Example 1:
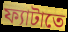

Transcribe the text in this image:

ফ্যাটাতে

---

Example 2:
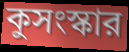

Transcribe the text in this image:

কুসংস্কার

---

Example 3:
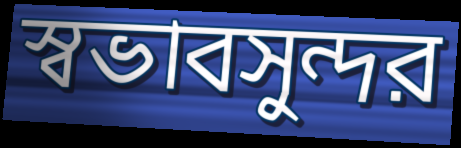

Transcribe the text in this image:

স্বভাবসুন্দর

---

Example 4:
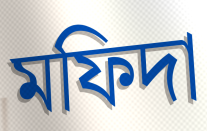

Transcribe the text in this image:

মফিদা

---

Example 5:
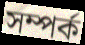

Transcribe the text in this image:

সম্পর্ক